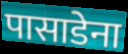
पासाडेना